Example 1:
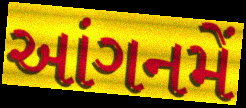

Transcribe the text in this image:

આંગનમેં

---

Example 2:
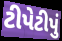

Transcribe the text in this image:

ટીપેટીપું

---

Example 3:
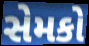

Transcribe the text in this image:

સેમકો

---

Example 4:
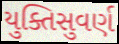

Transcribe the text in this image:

યુક્તિસુવર્ણ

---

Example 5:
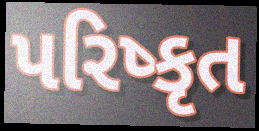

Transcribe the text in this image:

પરિષ્કૃત